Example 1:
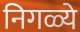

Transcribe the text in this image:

निगळ्ये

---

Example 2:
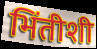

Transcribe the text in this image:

भिंतीशी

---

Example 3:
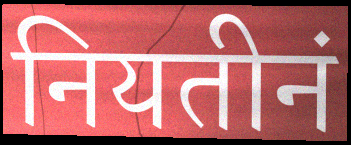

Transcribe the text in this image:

नियतीनं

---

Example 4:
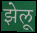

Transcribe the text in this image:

झेलू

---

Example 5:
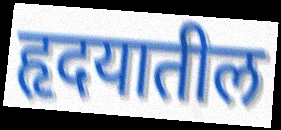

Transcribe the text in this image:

हृदयातील